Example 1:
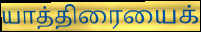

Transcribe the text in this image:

யாத்திரையைக்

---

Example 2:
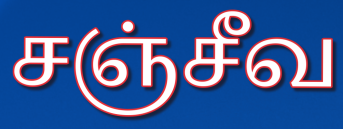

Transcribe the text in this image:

சஞ்சீவ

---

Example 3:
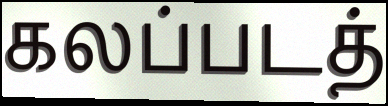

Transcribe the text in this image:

கலப்படத்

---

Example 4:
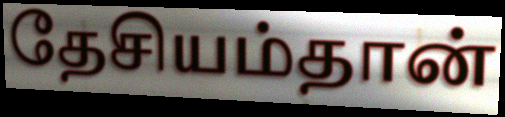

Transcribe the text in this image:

தேசியம்தான்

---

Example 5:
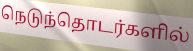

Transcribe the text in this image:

நெடுந்தொடர்களில்